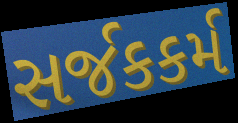
સર્જકકર્મ